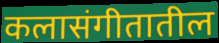
कलासंगीतातील